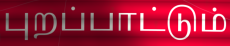
புறப்பாட்டும்